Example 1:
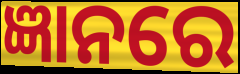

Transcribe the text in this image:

ଜ୍ଞାନରେ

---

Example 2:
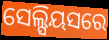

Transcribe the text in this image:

ସେଲ୍ସିୟସରେ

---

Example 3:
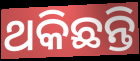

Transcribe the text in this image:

ଥକିଛନ୍ତି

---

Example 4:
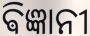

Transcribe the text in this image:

ଵିଜ୍ଞାନୀ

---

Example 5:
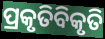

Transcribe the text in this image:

ପ୍ରକୃତିବିକୃତି